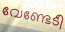
വേണ്ടേടീ